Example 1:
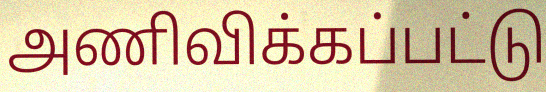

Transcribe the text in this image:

அணிவிக்கப்பட்டு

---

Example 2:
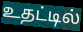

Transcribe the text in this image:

உதட்டில்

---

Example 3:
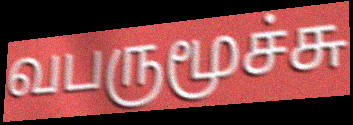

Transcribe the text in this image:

வபருமூச்சு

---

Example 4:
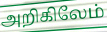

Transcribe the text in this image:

அறிகிலேம்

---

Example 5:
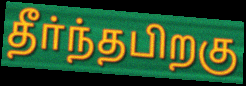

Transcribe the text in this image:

தீர்ந்தபிறகு